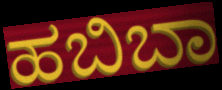
ಹಬಿಬಾ